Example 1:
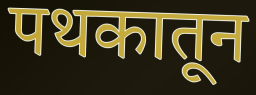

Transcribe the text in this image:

पथकातून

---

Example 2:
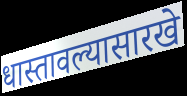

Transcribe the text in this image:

धास्तावल्यासारखे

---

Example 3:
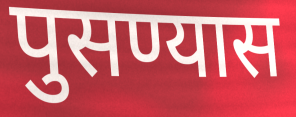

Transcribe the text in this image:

पुसण्यास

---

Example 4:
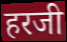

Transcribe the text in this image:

हरजी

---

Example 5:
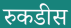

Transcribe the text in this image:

रुकडीस